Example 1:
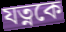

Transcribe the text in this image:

যত্নকে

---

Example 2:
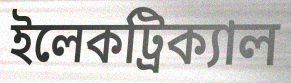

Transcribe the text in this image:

ইলেকট্রিক্যাল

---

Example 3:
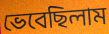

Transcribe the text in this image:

ভেবেছিলাম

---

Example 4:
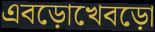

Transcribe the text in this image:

এবড়োখেবড়ো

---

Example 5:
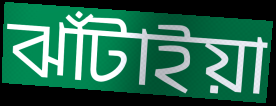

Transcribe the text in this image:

ঝাঁটাইয়া